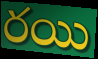
రయి